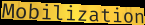
Mobilization